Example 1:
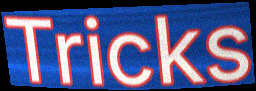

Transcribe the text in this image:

Tricks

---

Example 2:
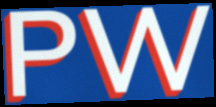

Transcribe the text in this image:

PW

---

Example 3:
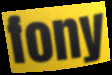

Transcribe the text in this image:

fony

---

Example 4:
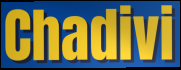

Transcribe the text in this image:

Chadivi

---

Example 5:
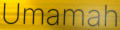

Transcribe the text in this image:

Umamah